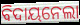
ବିଦାୟନେଲା